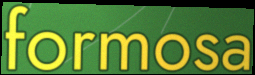
formosa